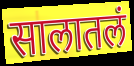
सालातलं